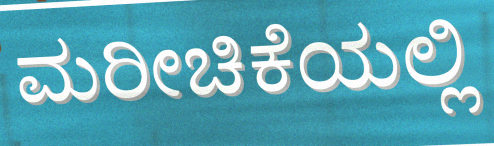
ಮರೀಚಿಕೆಯಲ್ಲಿ